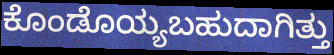
ಕೊಂಡೊಯ್ಯಬಹುದಾಗಿತ್ತು